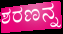
ಶರಣನ್ನ